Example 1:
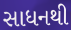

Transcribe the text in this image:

સાધનથી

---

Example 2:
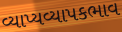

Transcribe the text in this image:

વ્યાપ્યવ્યાપકભાવ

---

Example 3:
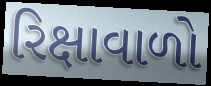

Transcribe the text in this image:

રિક્ષાવાળો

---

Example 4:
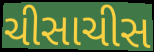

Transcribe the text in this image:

ચીસાચીસ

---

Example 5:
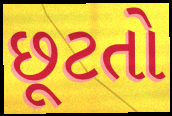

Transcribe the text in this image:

છૂટતો